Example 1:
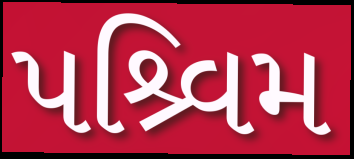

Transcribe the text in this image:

પશ્ર્વિમ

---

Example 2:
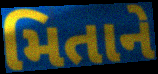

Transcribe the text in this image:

મિતાને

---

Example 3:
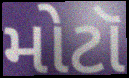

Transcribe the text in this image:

મોટૉ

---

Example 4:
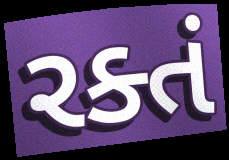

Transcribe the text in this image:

રક્તં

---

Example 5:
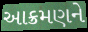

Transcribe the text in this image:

આક્રમણને